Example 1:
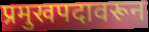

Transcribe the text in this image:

प्रमुखपदावरून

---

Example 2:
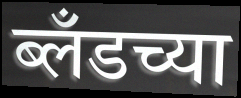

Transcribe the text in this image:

ब्लँडच्या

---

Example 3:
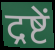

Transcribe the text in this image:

द्रष्टें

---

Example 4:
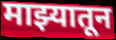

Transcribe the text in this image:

माझ्यातून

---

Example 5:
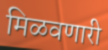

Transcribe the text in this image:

मिळवणारी